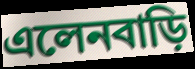
এলেনবাড়ি